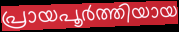
പ്രായപൂർത്തിയായ